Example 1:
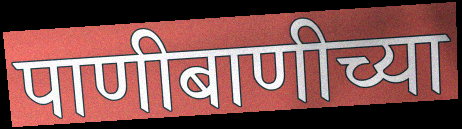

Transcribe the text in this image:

पाणीबाणीच्या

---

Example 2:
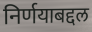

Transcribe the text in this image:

निर्णयाबद्दल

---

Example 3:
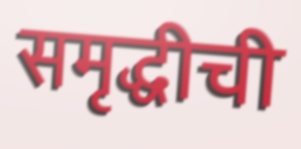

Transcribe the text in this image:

समृद्धीची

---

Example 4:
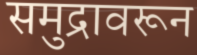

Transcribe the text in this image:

समुद्रावरून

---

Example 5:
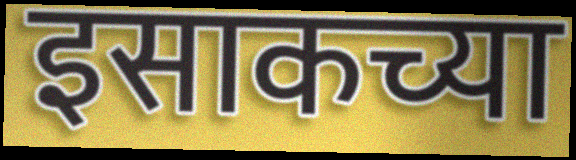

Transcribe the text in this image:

इसाकच्या